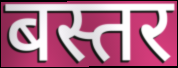
बस्तर